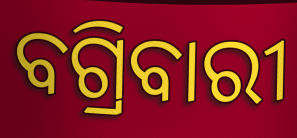
ବଗ୍ରିବାରୀ